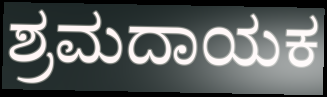
ಶ್ರಮದಾಯಕ